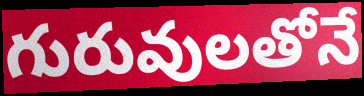
గురువులతోనే